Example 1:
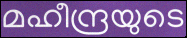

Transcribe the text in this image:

മഹീന്ദ്രയുടെ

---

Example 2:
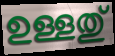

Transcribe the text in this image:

ഉള്ളതു്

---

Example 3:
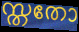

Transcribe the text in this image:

സ്തതോ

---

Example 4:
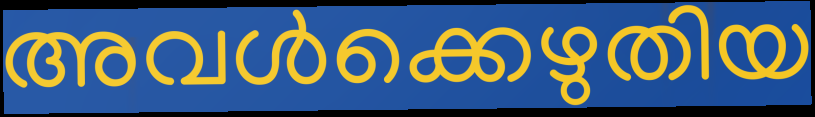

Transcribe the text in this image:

അവൾക്കെഴുതിയ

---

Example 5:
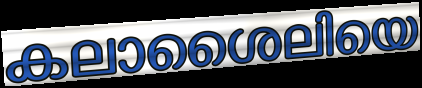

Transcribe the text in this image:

കലാശൈലിയെ